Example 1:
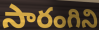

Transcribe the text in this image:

సారంగిని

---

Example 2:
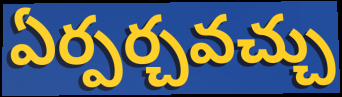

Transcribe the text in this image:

ఏర్పర్చవచ్చు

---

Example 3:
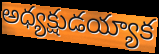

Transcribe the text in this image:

అధ్యక్షుడయ్యాక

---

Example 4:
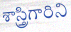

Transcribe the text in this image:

శాస్త్రిగారిని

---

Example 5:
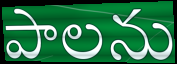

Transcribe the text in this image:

పాలను